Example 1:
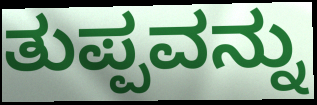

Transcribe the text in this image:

ತುಪ್ಪವನ್ನು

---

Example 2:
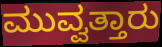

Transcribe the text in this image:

ಮುವ್ವತ್ತಾರು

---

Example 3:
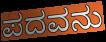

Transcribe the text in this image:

ಪದವನು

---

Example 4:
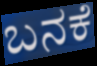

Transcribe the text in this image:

ಬನಕೆ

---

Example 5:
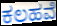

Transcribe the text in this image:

ಕಲಹವೆ